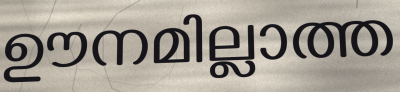
ഊനമില്ലാത്ത